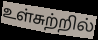
உள்சுற்றில்